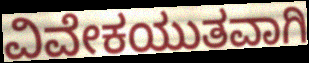
ವಿವೇಕಯುತವಾಗಿ